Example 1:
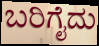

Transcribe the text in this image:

ಬರಿಗೈದು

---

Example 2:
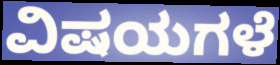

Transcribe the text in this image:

ವಿಷಯಗಳೆ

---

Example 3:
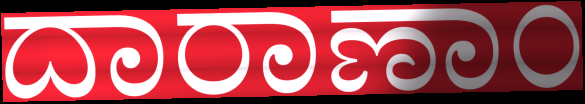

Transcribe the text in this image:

ದಾರಾಣಾಂ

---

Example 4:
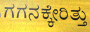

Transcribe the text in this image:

ಗಗನಕ್ಕೇರಿತ್ತು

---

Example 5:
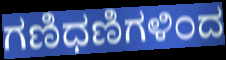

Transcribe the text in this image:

ಗಣಿಧಣಿಗಳಿಂದ